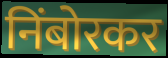
निंबोरकर